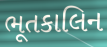
ભૂતકાલિન